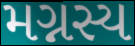
મગ્નસ્ય